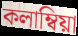
কলাম্বিয়া